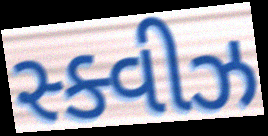
સ્ક્વીઝ